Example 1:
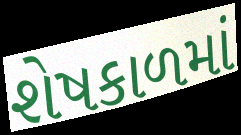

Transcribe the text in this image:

શેષકાળમાં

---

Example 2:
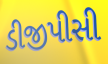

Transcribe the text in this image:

ડીજીપીસી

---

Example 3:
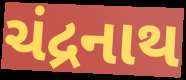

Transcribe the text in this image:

ચંદ્રનાથ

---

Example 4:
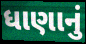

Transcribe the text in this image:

ધાણાનું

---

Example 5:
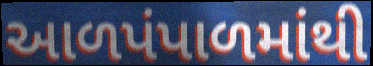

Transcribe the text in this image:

આળપંપાળમાંથી